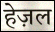
हेज़ल